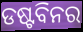
ଡଷ୍ଟବିନର